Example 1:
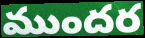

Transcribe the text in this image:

ముందర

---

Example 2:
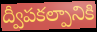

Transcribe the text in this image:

ద్వీపకల్పానికి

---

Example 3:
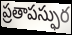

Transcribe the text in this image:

ప్రతాపస్ఫుర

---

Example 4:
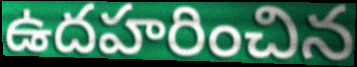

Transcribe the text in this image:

ఉదహరించిన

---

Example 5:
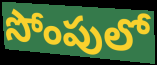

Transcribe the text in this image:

సోంపులో